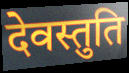
देवस्तुति